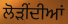
ਲੋੜੀਂਦੀਆਂ